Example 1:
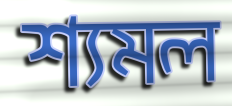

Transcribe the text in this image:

শ্যমল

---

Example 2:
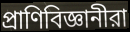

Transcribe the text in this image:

প্রাণিবিজ্ঞানীরা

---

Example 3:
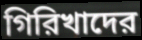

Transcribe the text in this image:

গিরিখাদের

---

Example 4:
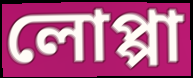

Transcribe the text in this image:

লোপ্পা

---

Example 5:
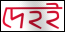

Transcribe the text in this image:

দেহই